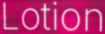
Lotion